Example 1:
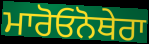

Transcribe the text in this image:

ਮਾਰੋਓਨੋਥੇਰਾ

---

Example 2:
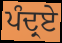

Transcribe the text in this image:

ਪੰਦ੍ਰਏ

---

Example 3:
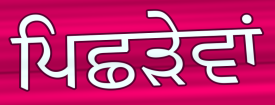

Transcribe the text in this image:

ਪਿਛੜੇਵਾਂ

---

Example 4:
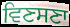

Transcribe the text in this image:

ਵਿਣਸਣਾ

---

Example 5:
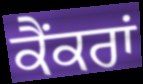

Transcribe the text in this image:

ਕੈਂਕਰਾਂ